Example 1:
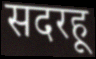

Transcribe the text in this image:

सदरहू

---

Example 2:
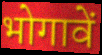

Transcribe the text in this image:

भोगावें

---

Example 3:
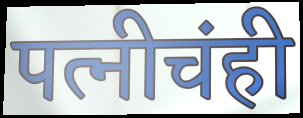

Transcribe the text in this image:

पत्नीचंही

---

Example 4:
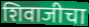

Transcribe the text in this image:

शिवाजीचा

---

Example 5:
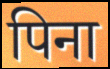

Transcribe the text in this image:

पिना